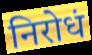
निरोधं